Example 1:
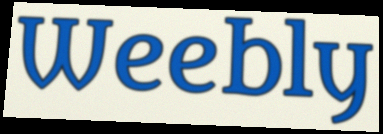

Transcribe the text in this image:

Weebly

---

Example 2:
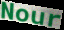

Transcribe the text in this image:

Nour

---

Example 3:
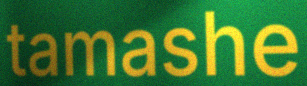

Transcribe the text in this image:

tamashe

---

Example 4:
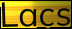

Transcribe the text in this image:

Lacs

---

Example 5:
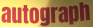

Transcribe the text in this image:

autograph